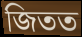
জিতত